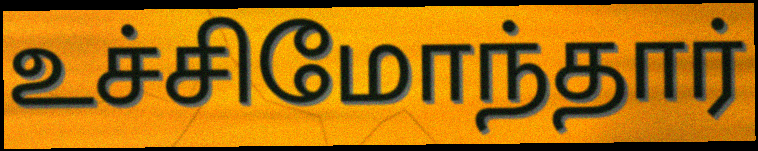
உச்சிமோந்தார்